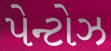
પેન્ટોઝ